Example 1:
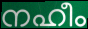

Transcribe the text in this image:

നഹീം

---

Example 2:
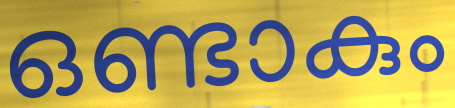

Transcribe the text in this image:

ഒണ്ടാകും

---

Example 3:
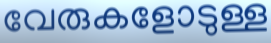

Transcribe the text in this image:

വേരുകളോടുള്ള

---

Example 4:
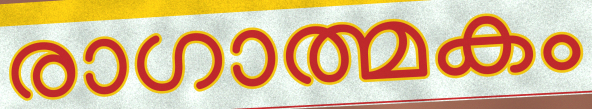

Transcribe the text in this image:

രാഗാത്മകം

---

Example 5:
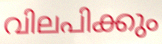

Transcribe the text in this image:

വിലപിക്കും